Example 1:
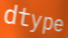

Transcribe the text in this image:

dtype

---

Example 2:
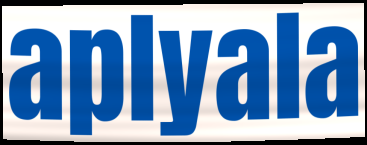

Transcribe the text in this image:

aplyala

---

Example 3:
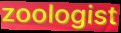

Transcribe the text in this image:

zoologist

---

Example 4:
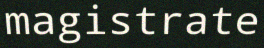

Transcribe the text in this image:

magistrate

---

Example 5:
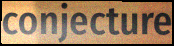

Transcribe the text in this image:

conjecture